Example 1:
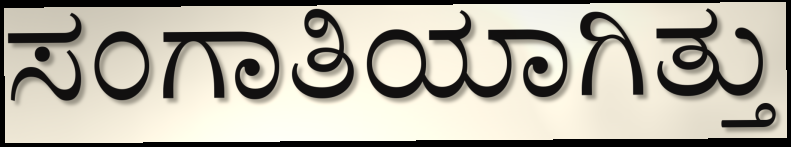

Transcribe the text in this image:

ಸಂಗಾತಿಯಾಗಿತ್ತು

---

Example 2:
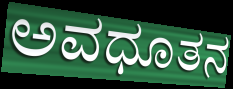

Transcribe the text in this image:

ಅವಧೂತನ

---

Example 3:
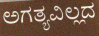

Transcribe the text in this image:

ಅಗತ್ಯವಿಲ್ಲದ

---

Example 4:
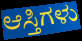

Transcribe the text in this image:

ಆಸ್ತಿಗಳು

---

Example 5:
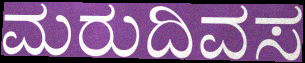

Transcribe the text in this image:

ಮರುದಿವಸ